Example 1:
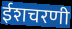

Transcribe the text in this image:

ईशचरणी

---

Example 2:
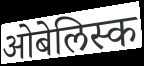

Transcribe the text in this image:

ओबेलिस्क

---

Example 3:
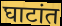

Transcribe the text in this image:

घाटांत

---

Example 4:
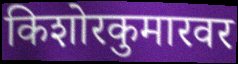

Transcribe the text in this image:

किशोरकुमारवर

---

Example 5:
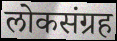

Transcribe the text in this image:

लोकसंग्रह